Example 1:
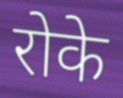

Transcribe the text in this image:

रोके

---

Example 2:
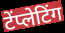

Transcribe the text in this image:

टेंप्लेटिंग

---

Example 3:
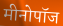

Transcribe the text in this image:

मीनोपॉज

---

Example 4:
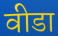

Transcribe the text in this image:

वीडा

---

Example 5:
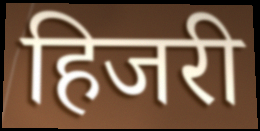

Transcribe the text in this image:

हिजरी